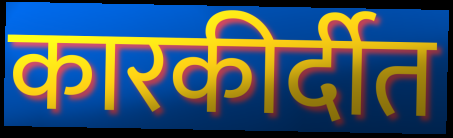
कारकीर्दीत